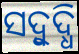
ସଦ୍ବୁଦ୍ଧି